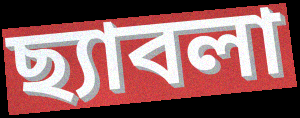
ছ্যাবলা